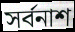
সৰ্বনাশ